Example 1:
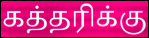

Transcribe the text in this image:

கத்தரிக்கு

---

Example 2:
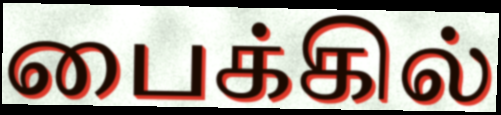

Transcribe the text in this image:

பைக்கில்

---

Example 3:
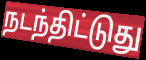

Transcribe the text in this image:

நடந்திட்டுது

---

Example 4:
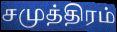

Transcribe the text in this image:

சமுத்திரம்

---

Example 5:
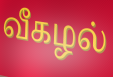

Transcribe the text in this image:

வீகழல்